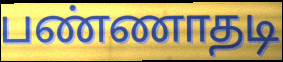
பண்ணாதடி